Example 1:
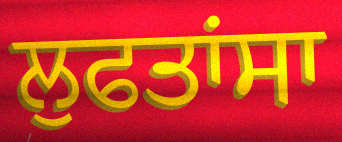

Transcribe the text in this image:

ਲੁਫਤਾਂਸਾ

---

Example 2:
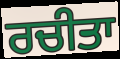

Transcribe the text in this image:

ਰਚੀਤਾ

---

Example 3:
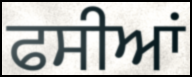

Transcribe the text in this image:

ਫਸੀਆਂ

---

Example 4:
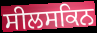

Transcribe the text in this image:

ਸੀਲਸਕਿਨ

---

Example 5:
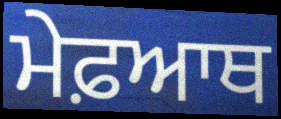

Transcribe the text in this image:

ਮੇਫ਼ਆਥ